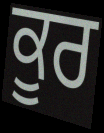
ਕੂਰ